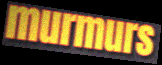
murmurs